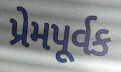
પ્રેમપૂર્વક